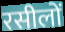
रसीलों